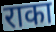
राका